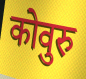
कोवुरु